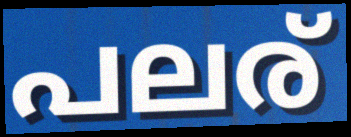
പലര്